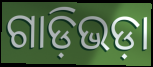
ଗାଡ଼ିଭଡ଼ା